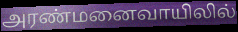
அரண்மனைவாயிலில்